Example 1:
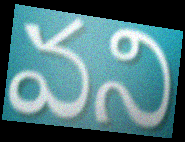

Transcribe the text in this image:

వని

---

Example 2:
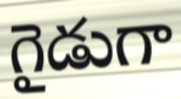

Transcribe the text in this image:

గైడుగా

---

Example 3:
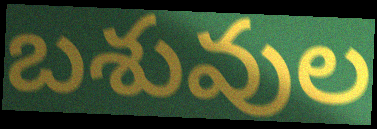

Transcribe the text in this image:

బశువుల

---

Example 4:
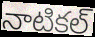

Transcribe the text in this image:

నాటికల్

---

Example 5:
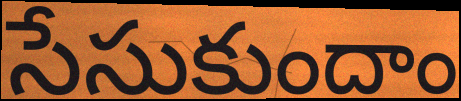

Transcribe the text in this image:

సేసుకుందాం